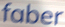
faber